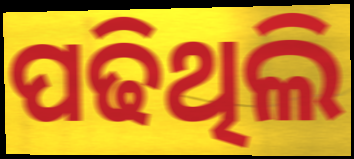
ପଢିଥିଲି